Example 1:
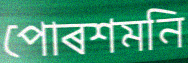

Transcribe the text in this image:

পোৰশমনি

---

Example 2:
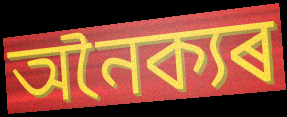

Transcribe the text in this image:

অনৈক্যৰ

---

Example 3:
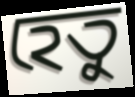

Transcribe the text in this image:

হেতু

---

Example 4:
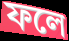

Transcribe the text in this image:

ফলে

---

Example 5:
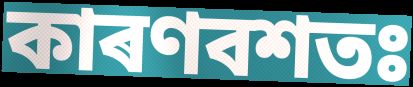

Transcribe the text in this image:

কাৰণবশতঃ